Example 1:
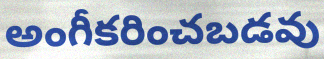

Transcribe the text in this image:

అంగీకరించబడవు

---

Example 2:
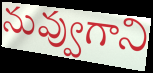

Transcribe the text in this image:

నువ్వుగాని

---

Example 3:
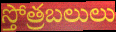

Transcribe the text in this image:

స్తోత్రబలులు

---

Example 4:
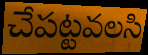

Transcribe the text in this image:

చేపట్టవలసి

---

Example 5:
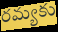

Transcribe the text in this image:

రమ్యకు